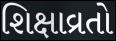
શિક્ષાવ્રતો